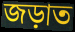
জড়াত